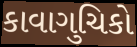
કાવાગુચિકો